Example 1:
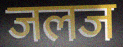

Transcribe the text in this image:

जलज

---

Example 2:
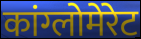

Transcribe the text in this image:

कांग्लोमेरेट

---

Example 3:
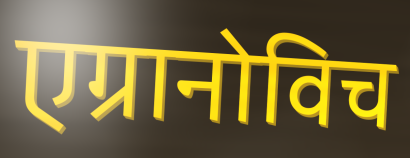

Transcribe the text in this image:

एग्रानोविच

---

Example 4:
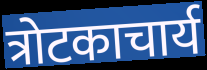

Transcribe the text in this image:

त्रोटकाचार्य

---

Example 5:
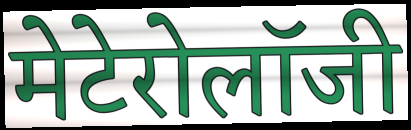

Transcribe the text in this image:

मेटेरोलॉजी